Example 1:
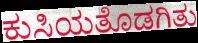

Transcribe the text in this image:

ಕುಸಿಯತೊಡಗಿತು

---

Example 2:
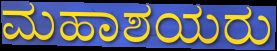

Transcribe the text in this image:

ಮಹಾಶಯರು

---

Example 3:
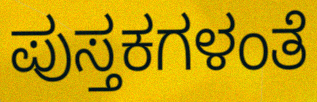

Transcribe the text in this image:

ಪುಸ್ತಕಗಳಂತೆ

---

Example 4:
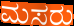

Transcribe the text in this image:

ಮಸರು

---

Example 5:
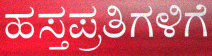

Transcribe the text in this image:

ಹಸ್ತಪ್ರತಿಗಳಿಗೆ